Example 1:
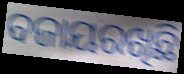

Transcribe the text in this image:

ବଜାୟରଖିଛି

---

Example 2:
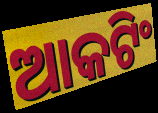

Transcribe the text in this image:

ଆକଟିଂ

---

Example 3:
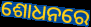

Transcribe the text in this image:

ଶୋଧନରେ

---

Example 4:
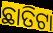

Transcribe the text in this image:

ଛାତିଟା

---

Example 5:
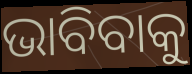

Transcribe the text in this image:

ଭାବିବାକୁ